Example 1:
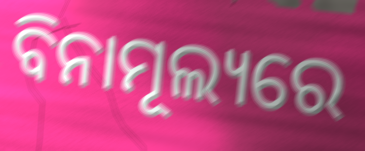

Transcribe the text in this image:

ବିନାମୂଲ୍ୟରେ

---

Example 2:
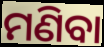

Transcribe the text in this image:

ମଣିବା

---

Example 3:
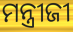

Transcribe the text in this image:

ମନ୍ତ୍ରୀଜୀ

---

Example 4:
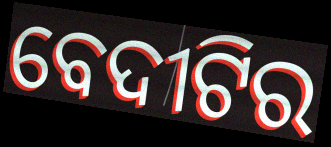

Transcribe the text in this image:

ବେଦୀଟିର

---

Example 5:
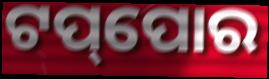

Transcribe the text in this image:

ଟପ୍‌ପୋର